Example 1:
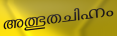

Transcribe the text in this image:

അത്ഭുതചിഹ്നം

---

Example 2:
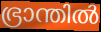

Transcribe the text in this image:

ഭ്രാന്തിൽ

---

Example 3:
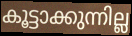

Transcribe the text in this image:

കൂട്ടാക്കുന്നില്ല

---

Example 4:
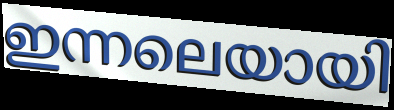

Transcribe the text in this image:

ഇന്നലെയായി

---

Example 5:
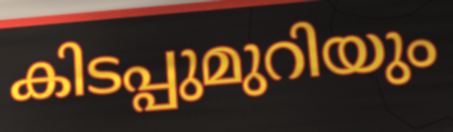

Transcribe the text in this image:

കിടപ്പുമുറിയും